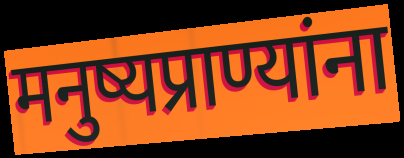
मनुष्यप्राण्यांना